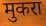
मुकरा